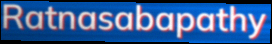
Ratnasabapathy